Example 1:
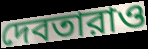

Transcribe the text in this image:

দেবতারাও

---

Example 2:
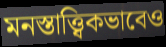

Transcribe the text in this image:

মনস্তাত্ত্বিকভাবেও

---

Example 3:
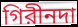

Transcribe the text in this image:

গিরীনদা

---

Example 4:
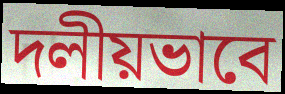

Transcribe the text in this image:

দলীয়ভাবে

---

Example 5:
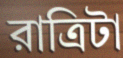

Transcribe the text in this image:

রাত্রিটা